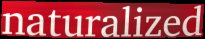
naturalized